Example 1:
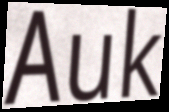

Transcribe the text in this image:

Auk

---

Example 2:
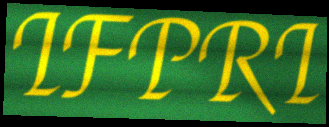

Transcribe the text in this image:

IFPRI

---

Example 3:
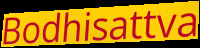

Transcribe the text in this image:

Bodhisattva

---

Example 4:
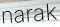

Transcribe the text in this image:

narak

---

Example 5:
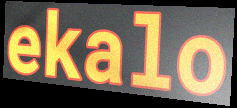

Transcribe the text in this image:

ekalo